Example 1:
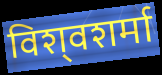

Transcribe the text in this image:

विश्वशर्मा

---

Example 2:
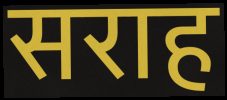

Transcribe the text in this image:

सराह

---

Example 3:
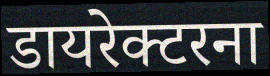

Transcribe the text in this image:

डायरेक्टरना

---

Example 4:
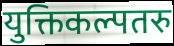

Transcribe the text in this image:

युक्तिकल्पतरु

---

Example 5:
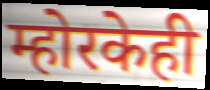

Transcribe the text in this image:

म्होरकेही